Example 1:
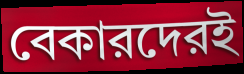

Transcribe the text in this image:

বেকারদেরই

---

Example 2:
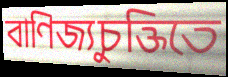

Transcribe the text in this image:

বাণিজ্যচুক্তিতে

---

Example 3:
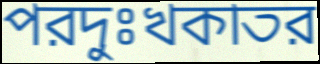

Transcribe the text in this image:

পরদুঃখকাতর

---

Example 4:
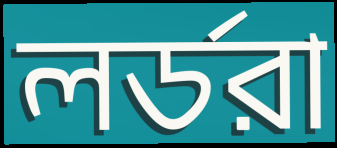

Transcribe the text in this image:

লর্ডরা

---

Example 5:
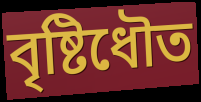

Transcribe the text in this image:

বৃষ্টিধৌত